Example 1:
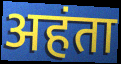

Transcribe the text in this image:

अहंता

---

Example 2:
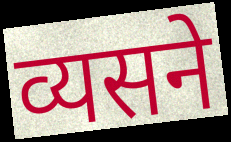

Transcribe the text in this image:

व्यसने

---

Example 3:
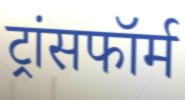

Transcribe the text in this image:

ट्रांसफॉर्म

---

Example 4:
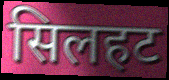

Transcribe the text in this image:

सिलहट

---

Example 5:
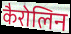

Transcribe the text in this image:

कैरोलिन